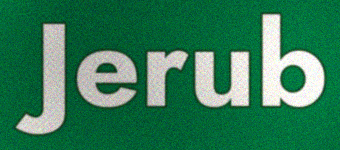
Jerub